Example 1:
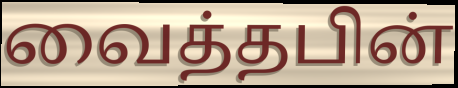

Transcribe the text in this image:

வைத்தபின்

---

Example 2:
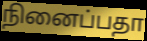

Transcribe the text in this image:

நினைப்பதா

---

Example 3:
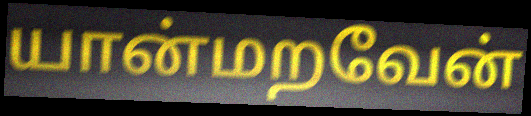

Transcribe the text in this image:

யான்மறவேன்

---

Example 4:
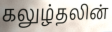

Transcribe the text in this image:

கலுழ்தலின்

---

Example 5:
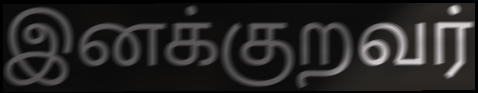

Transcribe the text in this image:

இனக்குறவர்